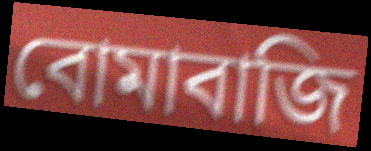
বোমাবাজি